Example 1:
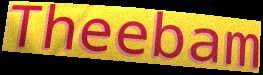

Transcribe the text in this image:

Theebam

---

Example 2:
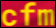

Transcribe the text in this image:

cfm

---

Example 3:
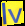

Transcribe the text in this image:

lv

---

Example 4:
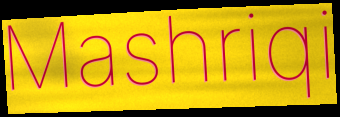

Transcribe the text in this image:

Mashriqi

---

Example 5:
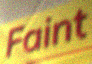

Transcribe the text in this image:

Faint